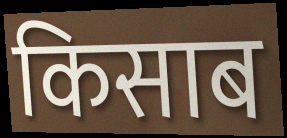
किसाब